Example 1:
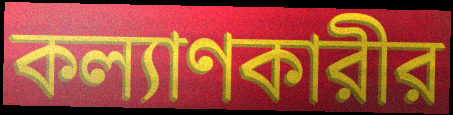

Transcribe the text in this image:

কল্যাণকারীর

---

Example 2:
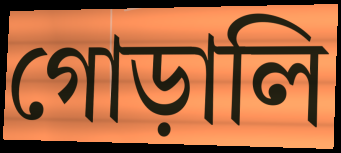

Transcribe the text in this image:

গোড়ালি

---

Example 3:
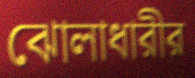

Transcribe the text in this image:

ঝোলাধারীর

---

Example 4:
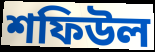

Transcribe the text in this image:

শফিউল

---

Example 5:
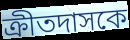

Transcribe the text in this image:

ক্রীতদাসকে